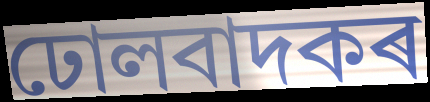
ঢোলবাদকৰ